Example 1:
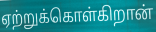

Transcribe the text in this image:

ஏற்றுக்கொள்கிறான்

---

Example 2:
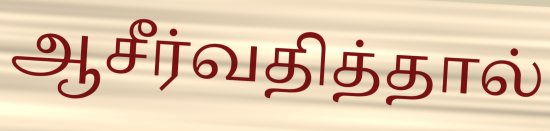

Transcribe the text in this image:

ஆசீர்வதித்தால்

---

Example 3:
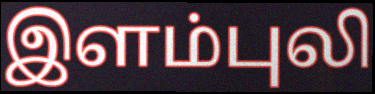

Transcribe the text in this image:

இளம்புலி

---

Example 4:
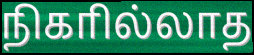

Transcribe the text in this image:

நிகரில்லாத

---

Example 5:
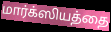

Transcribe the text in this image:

மார்க்ஸியத்தை